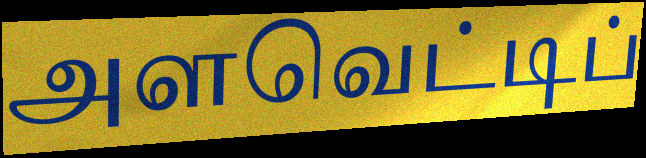
அளவெட்டிப்